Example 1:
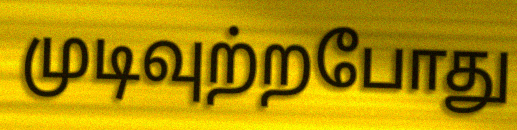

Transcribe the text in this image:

முடிவுற்றபோது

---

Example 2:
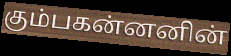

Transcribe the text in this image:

கும்பகன்னனின்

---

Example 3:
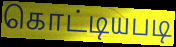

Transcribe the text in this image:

கொட்டியபடி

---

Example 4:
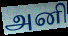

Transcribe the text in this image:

அனி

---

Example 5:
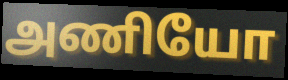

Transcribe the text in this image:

அணியோ